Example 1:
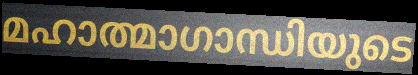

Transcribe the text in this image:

മഹാത്മാഗാന്ധിയുടെ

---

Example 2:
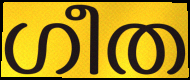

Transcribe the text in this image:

ഗീത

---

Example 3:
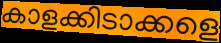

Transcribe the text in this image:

കാളക്കിടാക്കളെ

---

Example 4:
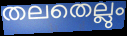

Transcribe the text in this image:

തലതെല്ലും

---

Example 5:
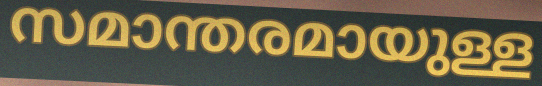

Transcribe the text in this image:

സമാന്തരമായുള്ള